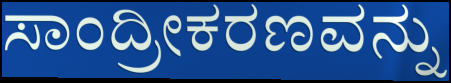
ಸಾಂದ್ರೀಕರಣವನ್ನು